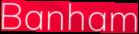
Banham